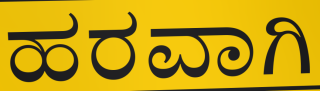
ಹರವಾಗಿ